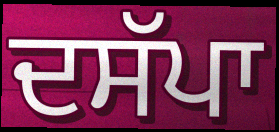
ਦਸੱਪਾ